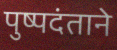
पुष्पदंताने